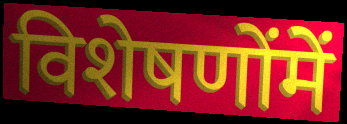
विशेषणोंमें